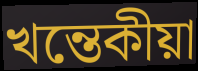
খন্তেকীয়া